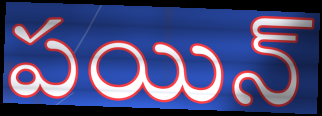
పయిన్